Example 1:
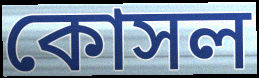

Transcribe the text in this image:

কোসল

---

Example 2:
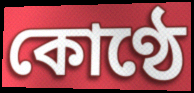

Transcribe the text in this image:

কোণ্ঠে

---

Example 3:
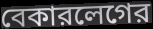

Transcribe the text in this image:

বেকারলেগের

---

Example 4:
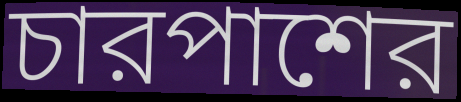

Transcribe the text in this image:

চারপাশের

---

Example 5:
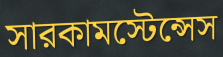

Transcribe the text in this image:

সারকামস্টেন্সেস